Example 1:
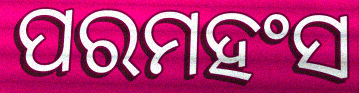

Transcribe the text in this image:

ପରମହଂସ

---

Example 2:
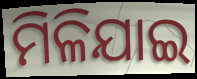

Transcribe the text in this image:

ମିଳିଯାଇ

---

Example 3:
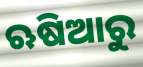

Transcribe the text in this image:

ଋଷିଆରୁ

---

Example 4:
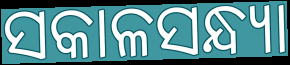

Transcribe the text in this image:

ସକାଳସନ୍ଧ୍ୟା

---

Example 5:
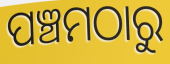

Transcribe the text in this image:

ପଞ୍ଚମଠାରୁ